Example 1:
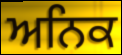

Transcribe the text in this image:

ਅਨਿਕ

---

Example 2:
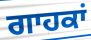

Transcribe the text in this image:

ਗਾਹਕਾਂ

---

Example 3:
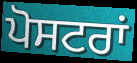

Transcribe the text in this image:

ਪੋਸਟਰਾਂ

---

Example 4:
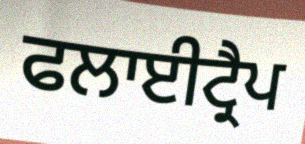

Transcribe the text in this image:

ਫਲਾਈਟ੍ਰੈਪ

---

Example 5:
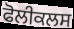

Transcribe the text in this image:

ਫੋਲੀਕਲਸ